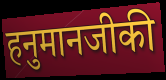
हनुमानजीकी